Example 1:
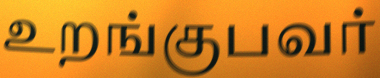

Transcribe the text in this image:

உறங்குபவர்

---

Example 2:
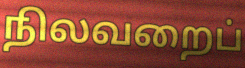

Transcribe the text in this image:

நிலவறைப்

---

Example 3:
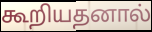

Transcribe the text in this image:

கூறியதனால்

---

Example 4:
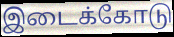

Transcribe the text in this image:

இடைக்கோடு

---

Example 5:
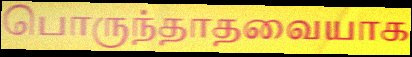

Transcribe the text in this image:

பொருந்தாதவையாக